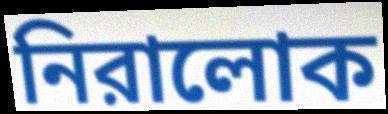
নিরালোক